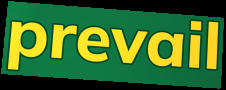
prevail